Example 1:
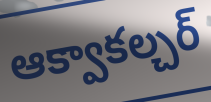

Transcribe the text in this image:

ఆక్వాకల్చర్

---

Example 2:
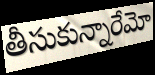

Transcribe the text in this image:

తీసుకున్నారేమో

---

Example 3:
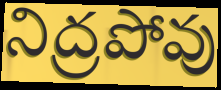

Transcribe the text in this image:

నిద్రపోవు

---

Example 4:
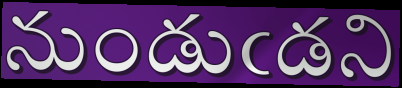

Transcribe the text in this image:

నుండుఁడని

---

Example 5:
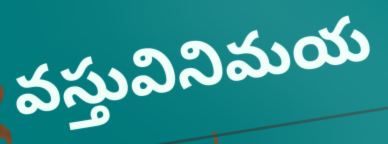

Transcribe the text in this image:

వస్తువినిమయ